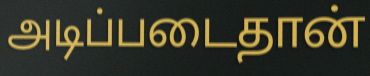
அடிப்படைதான்